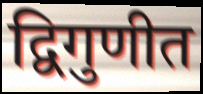
द्विगुणीत